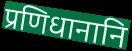
प्रणिधानानि